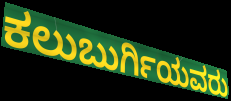
ಕಲುಬುರ್ಗಿಯವರು